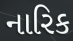
નારિક